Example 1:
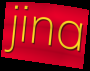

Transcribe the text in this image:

jina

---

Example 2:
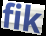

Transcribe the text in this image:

fik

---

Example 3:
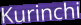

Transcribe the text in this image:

Kurinchi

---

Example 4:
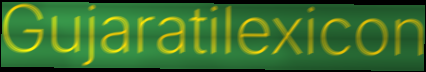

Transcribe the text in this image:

Gujaratilexicon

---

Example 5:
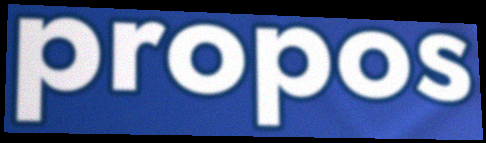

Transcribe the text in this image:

propos